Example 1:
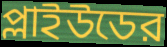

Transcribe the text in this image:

প্লাইউডের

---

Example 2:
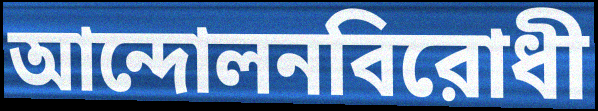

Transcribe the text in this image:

আন্দোলনবিরোধী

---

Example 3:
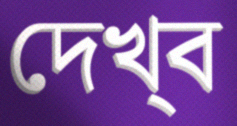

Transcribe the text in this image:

দেখ্‌ব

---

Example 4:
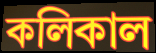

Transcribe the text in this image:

কলিকাল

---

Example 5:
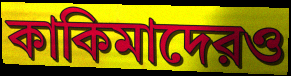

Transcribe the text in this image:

কাকিমাদেরও